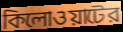
কিলোওয়াটের